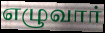
எழுவார்